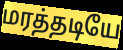
மரத்தடியே